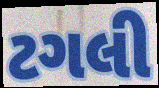
ટગલી